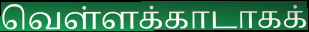
வெள்ளக்காடாகக்